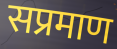
सप्रमाण